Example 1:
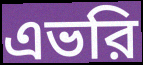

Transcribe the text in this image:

এভরি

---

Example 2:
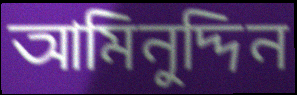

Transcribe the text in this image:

আমিনুদ্দিন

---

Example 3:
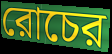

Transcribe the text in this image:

রোচের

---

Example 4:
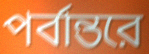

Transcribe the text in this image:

পর্বান্তরে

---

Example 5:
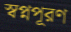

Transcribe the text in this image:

স্বপ্নপূরণ